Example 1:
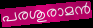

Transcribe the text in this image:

പരശുരാമൻ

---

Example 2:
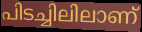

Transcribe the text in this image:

പിടച്ചിലിലാണ്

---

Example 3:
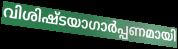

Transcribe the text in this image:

വിശിഷ്ടയാഗാർപ്പണമായി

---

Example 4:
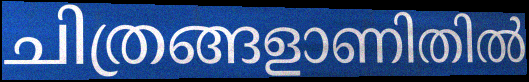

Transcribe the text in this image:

ചിത്രങ്ങളാണിതിൽ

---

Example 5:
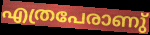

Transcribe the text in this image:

എത്രപേരാണു്